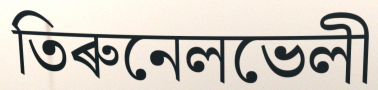
তিৰুনেলভেলী